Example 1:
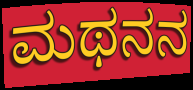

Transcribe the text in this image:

ಮಥನನ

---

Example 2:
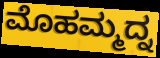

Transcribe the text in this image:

ಮೊಹಮ್ಮದ್ನ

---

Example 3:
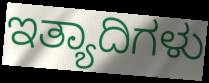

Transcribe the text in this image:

ಇತ್ಯಾದಿಗಳು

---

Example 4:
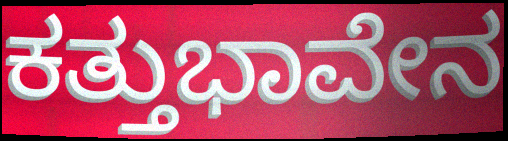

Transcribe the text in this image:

ಕತ್ತುಭಾವೇನ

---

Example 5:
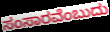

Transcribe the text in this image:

ಸಂಸಾರವೆಂಬುದು